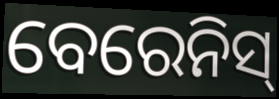
ବେରେନିସ୍